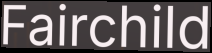
Fairchild